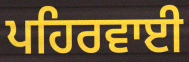
ਪਹਿਰਵਾਈ